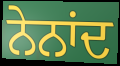
ਨੇਨਾਂਦ